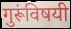
गुरूंविषयी